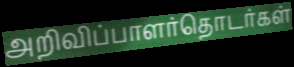
அறிவிப்பாளர்தொடர்கள்